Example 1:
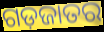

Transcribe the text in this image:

ଗଡ଼ଜାତର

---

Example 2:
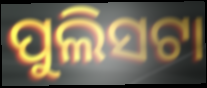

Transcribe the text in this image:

ପୁଲିସଟା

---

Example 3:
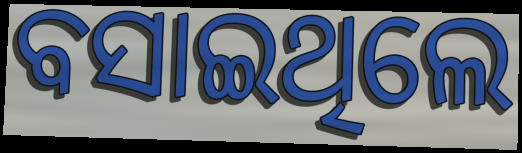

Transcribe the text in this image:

ବସାଇଥିଲେ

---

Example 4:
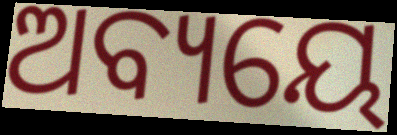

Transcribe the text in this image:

ଅବ୍ୟୟେ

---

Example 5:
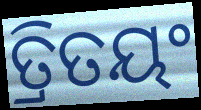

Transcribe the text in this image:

ତ୍ରିତୟଂ